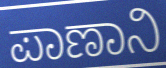
ಪಾಣಾನಿ